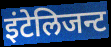
इंटेलिजन्ट